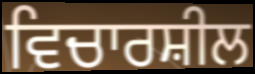
ਵਿਚਾਰਸ਼ੀਲ